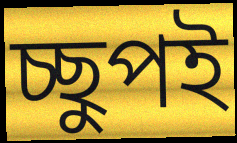
চ্ছুপই